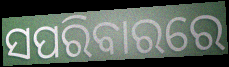
ସପରିବାରରେ